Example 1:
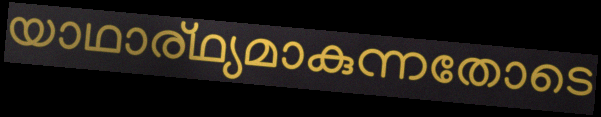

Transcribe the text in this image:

യാഥാര്ഥ്യമാകുന്നതോടെ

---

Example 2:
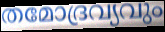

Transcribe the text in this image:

തമോദ്രവ്യവും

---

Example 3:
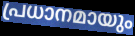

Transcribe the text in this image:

പ്രധാനമായും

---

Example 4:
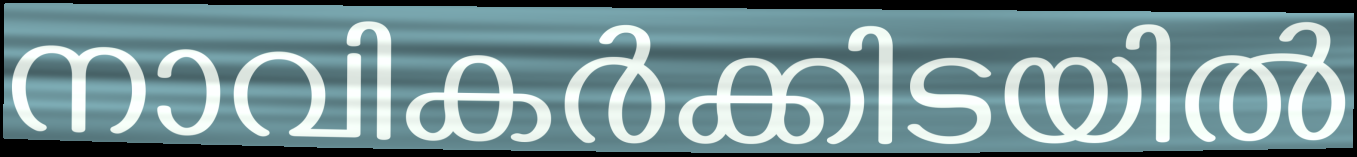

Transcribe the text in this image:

നാവികർക്കിടയിൽ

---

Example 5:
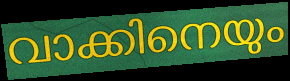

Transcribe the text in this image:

വാക്കിനെയും